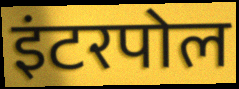
इंटरपोल